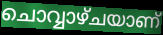
ചൊവ്വാഴ്ചയാണ്